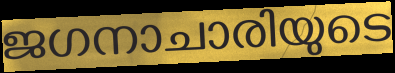
ജഗനാചാരിയുടെ